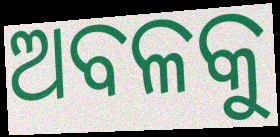
ଅବଳକୁ